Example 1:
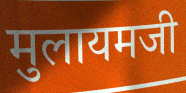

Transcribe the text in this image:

मुलायमजी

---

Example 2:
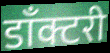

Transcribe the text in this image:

डाँक्टरी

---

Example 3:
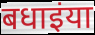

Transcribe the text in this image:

बधाइंया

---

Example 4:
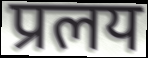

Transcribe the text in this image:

प्रलय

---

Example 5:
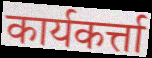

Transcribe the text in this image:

कार्यकर्त्ता